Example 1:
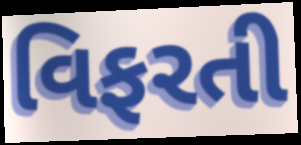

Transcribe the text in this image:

વિફરતી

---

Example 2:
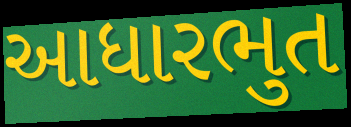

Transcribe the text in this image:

આધારભુત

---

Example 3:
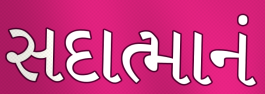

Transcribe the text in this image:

સદાત્માનં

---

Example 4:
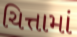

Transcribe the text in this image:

ચિત્તામાં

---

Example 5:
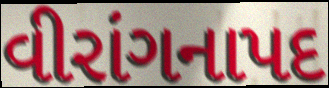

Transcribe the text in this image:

વીરાંગનાપદ